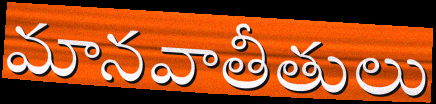
మానవాతీతులు